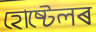
হোষ্টেলৰ